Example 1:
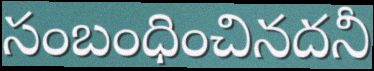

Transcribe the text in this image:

సంబంధించినదనీ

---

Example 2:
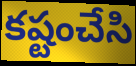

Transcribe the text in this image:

కష్టంచేసి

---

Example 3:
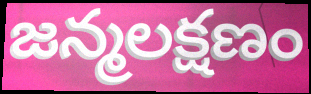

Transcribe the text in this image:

జన్మలక్షణం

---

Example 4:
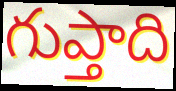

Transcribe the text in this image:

గుప్తాది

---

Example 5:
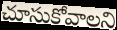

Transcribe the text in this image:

చూసుకోవాలని